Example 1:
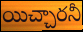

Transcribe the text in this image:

యిచ్చారనీ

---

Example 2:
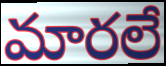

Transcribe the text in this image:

మారలే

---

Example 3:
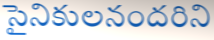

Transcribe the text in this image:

సైనికులనందరిని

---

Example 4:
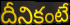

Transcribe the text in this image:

దీనికంటే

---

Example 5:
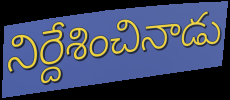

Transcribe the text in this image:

నిర్దేశించినాడు